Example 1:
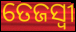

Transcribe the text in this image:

ତେଜସ୍ବୀ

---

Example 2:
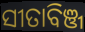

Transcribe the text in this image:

ସୀତାବିଞ୍ଜ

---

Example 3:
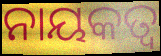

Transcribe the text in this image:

ନାୟକତ୍ୱ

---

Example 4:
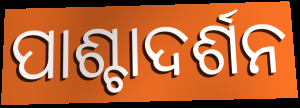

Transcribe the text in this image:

ପାଶ୍ଚାଦର୍ଶନ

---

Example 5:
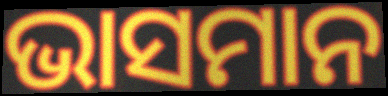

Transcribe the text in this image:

ଭାସମାନ